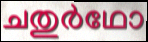
ചതുർഥോ